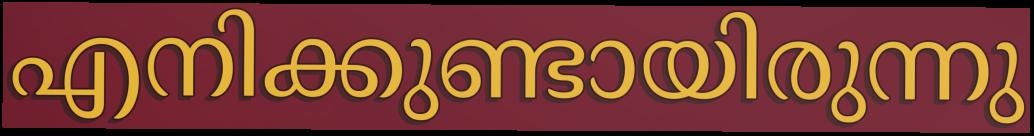
എനിക്കുണ്ടായിരുന്നു